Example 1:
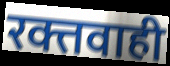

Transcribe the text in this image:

रक्तवाही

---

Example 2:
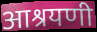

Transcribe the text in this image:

आश्रयणी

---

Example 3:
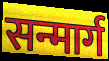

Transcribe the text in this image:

सन्‍मार्ग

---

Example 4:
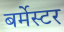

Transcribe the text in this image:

बर्मेस्टर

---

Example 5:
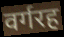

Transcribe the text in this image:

वर्गरह